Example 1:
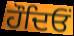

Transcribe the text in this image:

ਹੌਦਿਓਂ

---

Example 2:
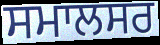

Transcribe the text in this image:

ਸਮਾਲਸਰ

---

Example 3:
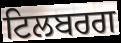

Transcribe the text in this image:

ਟਿਲਬਰਗ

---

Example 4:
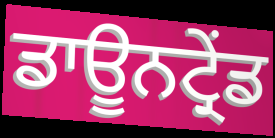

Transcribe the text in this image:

ਡਾਊਨਟ੍ਰੇਂਡ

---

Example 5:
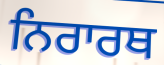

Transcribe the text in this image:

ਨਿਰਾਰਥ